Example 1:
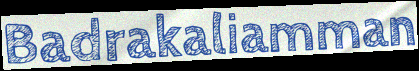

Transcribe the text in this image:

Badrakaliamman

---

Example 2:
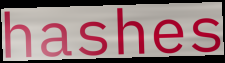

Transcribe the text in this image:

hashes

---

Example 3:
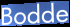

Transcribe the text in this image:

Bodde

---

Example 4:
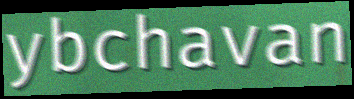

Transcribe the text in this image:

ybchavan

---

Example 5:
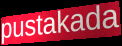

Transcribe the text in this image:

pustakada